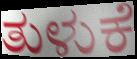
ತುಳುಕೆ